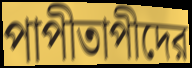
পাপীতাপীদের